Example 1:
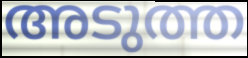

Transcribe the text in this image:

അടുത്ത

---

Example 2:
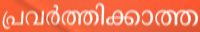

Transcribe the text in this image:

പ്രവർത്തിക്കാത്ത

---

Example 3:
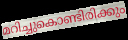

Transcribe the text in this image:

മറിച്ചുകൊണ്ടിരിക്കും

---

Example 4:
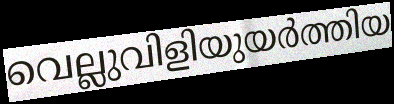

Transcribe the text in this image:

വെല്ലുവിളിയുയർത്തിയ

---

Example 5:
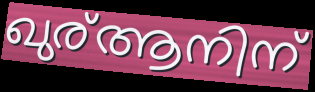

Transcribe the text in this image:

ഖുര്ആനിന്